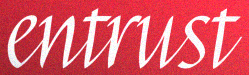
entrust